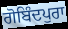
ਗੋਬਿੰਦਪੁਰਾ